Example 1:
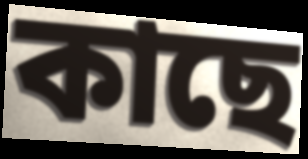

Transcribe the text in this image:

কাছে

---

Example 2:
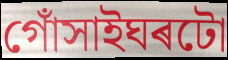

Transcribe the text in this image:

গোঁসাইঘৰটো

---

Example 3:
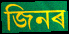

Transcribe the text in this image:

জিনৰ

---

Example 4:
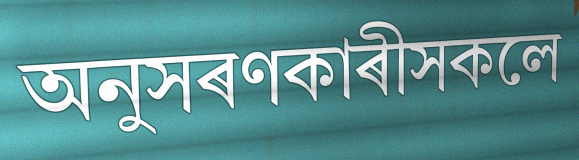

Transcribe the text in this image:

অনুসৰণকাৰীসকলে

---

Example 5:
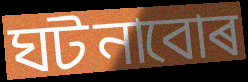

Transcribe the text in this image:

ঘটনাবোৰ